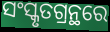
ସଂସ୍କୃତଗ୍ରନ୍ଥରେ